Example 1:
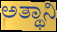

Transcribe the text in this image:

ಅತ್ಥಾನಿ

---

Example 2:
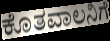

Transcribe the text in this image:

ಕೊತವಾಲನಿಗೆ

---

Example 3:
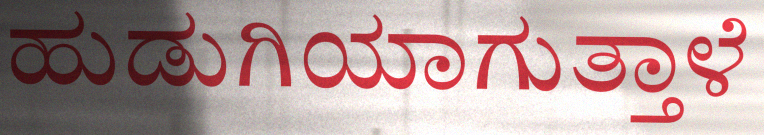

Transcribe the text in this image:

ಹುಡುಗಿಯಾಗುತ್ತಾಳೆ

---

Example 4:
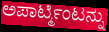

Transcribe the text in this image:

ಅಪಾರ್ಟ್ಮೆಂಟನ್ನು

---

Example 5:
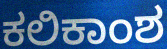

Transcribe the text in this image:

ಕಲಿಕಾಂಶ